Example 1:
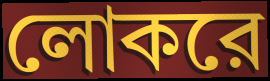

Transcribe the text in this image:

লোকরে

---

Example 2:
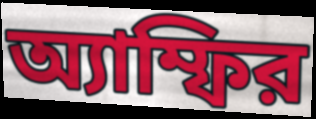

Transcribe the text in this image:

অ্যাম্ফির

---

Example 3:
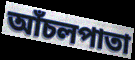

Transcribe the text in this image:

আঁচলপাতা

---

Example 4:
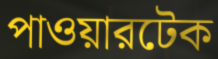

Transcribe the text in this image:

পাওয়ারটেক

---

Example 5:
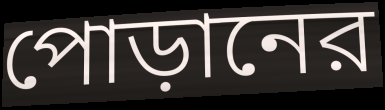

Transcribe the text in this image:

পোড়ানের